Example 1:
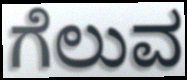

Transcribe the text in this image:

ಗೆಲುವ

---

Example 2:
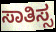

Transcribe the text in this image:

ಸಾತಿಸ್ಸ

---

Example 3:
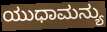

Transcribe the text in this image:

ಯುಧಾಮನ್ಯು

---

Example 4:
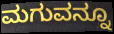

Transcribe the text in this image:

ಮಗುವನ್ನೂ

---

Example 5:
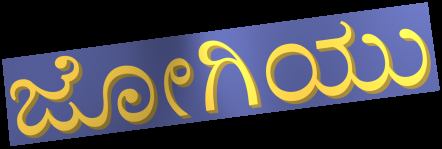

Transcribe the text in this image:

ಜೋಗಿಯು